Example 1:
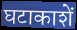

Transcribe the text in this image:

घटाकाशें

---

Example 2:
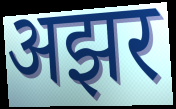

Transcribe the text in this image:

अझर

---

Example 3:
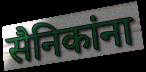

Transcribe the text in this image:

सैनिकांना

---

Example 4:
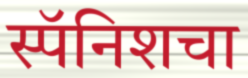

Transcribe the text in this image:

स्पॅनिशचा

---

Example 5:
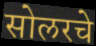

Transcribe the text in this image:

सोलरचे